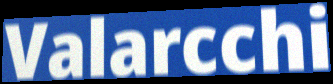
Valarcchi